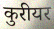
कुरीयर